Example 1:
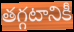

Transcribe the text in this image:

తగ్గటానికీ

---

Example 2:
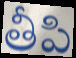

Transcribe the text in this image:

తీపి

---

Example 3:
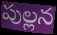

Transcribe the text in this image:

పుల్లన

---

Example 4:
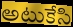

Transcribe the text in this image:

అటుకేసి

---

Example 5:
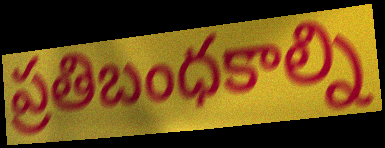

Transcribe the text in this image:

ప్రతిబంధకాల్ని